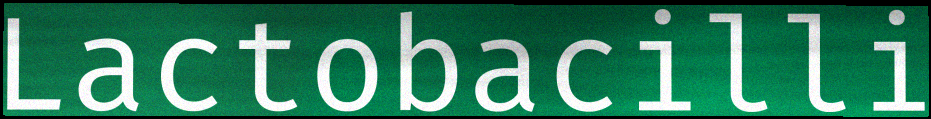
Lactobacilli